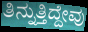
ತಿನ್ನುತ್ತಿದ್ದೇವು